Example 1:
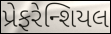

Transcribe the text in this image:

પ્રેફરેન્શિયલ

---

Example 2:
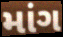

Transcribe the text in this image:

માંગ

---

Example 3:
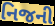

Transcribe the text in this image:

નિજની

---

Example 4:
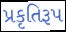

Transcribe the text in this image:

પ્રકૃતિરૂપ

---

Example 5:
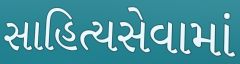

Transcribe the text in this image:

સાહિત્યસેવામાં